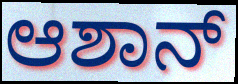
ಆಶಾನ್